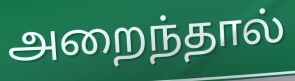
அறைந்தால்